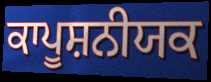
ਕਾਪੂਸ਼ਨੀਯਕ